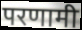
परणामी